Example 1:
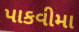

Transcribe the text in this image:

પાકવીમા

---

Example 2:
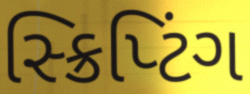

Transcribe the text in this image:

સ્ક્રિપ્ટિંગ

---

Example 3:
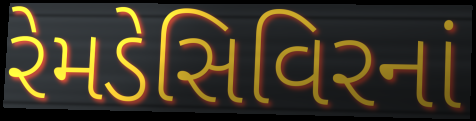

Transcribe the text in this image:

રેમડેસિવિરનાં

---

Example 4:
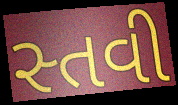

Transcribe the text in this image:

સ્તવી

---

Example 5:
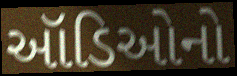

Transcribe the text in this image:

ઑડિઓનો